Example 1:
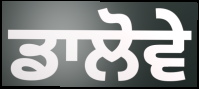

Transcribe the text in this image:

ਡਾਲੋਵੇ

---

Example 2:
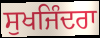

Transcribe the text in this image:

ਸੁਖਜਿੰਦਰਾ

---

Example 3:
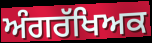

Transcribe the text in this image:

ਅੰਗਰੱਖਿਅਕ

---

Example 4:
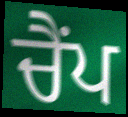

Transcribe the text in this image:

ਚੈਂਪ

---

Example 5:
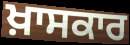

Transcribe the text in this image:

ਖ਼ਾਸਕਾਰ